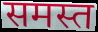
समस्त